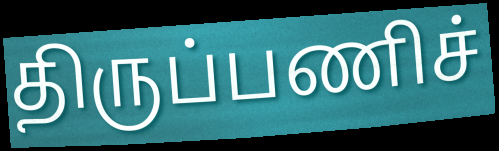
திருப்பணிச்